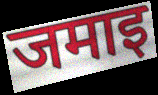
जमाइ